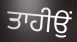
ਤਾਹੀਉਂ